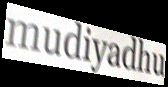
mudiyadhu